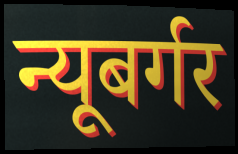
न्यूबर्गर